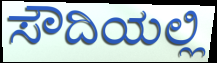
ಸೌದಿಯಲ್ಲಿ